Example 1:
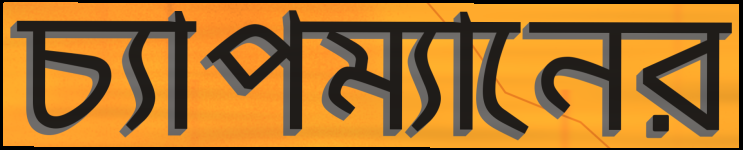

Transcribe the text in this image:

চ্যাপম্যানের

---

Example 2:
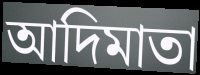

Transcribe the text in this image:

আদিমাতা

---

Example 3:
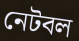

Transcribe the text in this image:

নেটবল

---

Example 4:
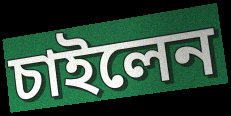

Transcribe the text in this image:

চাইলেন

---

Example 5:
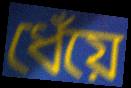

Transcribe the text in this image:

ধেঁয়ে